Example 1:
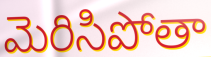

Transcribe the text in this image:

మెరిసిపోతా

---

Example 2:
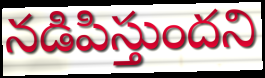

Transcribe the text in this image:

నడిపిస్తుందని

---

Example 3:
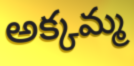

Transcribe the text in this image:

అక్కమ్మ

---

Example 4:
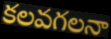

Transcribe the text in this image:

కలవగలనా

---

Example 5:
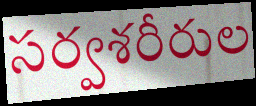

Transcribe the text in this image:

సర్వశరీరుల